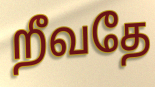
றீவதே